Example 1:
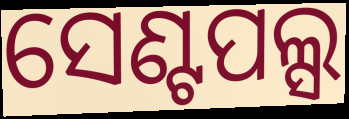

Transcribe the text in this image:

ସେଣ୍ଟପଲ୍ସ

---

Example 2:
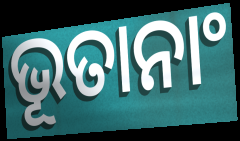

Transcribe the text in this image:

ଭୂତାନାଂ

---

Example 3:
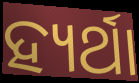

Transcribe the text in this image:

ହ୍ୟର୍ଥା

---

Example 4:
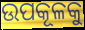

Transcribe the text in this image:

ଉପକୂଳକୁ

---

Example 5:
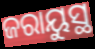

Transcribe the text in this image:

ଜରାୟୁସ୍ଥ